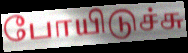
போயிடுச்சு